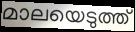
മാലയെടുത്ത്